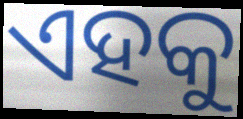
ଏହକୁ